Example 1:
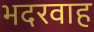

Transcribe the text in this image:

भदरवाह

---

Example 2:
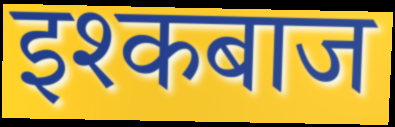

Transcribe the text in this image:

इश्कबाज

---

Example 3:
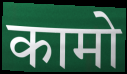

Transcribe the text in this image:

कामो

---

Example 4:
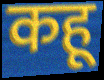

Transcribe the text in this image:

कहू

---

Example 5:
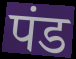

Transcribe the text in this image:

पंड